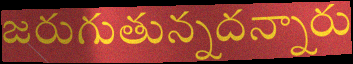
జరుగుతున్నదన్నారు